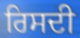
ਰਿਸਦੀ